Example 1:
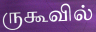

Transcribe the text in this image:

ருகூவில்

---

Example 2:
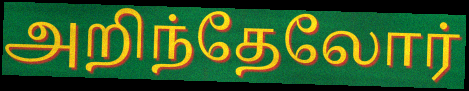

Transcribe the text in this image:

அறிந்தேலோர்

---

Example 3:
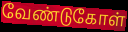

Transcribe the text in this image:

வேண்டுகோள்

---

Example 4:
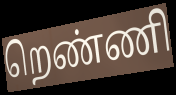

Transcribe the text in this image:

றெண்ணி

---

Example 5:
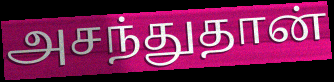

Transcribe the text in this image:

அசந்துதான்